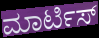
ಮಾರ್ಟಿಸ್